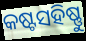
କଷ୍ଟସହିଷ୍ଣୁ